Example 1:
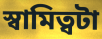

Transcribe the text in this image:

স্বামিত্বটা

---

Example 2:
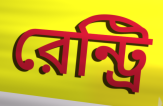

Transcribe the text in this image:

রেন্ট্রি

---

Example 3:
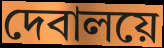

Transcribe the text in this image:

দেবালয়ে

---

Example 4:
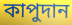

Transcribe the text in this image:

কাপুদান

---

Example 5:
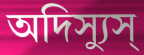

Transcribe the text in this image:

অদিস্যুস্